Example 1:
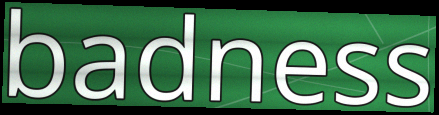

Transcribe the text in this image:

badness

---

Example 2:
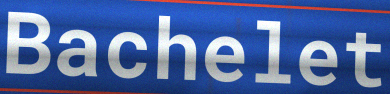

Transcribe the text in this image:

Bachelet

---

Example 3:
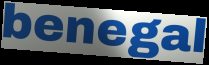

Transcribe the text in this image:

benegal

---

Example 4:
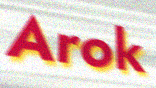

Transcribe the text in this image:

Arok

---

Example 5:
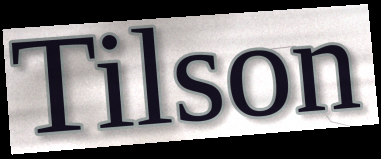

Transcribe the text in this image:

Tilson